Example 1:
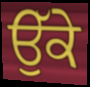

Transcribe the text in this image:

ਉੱਕੇ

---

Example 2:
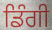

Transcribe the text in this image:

ਡਿੰਗੀ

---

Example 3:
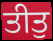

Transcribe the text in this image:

ਤੀਤੁ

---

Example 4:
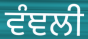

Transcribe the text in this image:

ਵੰਞਲੀ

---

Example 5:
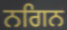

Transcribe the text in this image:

ਨਗਿਨ